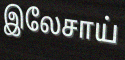
இலேசாய்